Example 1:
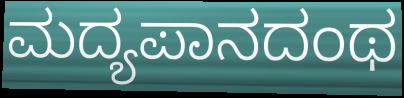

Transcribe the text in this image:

ಮದ್ಯಪಾನದಂಥ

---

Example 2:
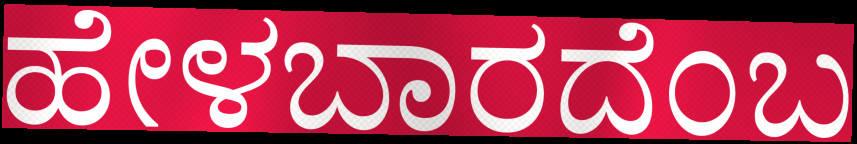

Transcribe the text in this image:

ಹೇಳಬಾರದೆಂಬ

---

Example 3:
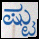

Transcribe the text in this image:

ಷ್ಟು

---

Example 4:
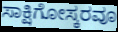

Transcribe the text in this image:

ಸಾಕ್ಷಿಗೋಸ್ಕರವೂ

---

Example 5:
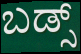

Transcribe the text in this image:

ಬಡ್ಸ್